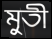
মুতী